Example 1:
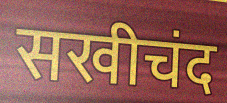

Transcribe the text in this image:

सखीचंद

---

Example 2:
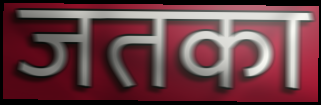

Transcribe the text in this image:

जतका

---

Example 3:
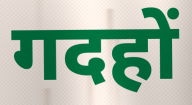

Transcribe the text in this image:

गदहों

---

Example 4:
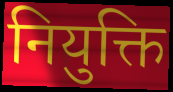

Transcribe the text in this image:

नियुक्ति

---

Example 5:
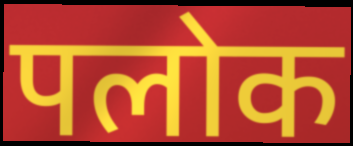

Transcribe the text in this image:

पलोक